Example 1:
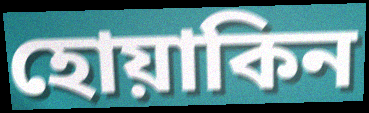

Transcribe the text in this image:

হোয়াকিন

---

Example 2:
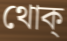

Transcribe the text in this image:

থোক্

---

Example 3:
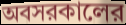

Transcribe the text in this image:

অবসরকালের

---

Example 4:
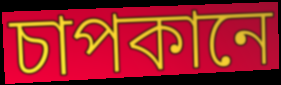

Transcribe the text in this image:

চাপকানে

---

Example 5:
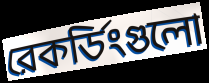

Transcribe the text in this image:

রেকর্ডিংগুলো